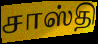
சாஸ்தி